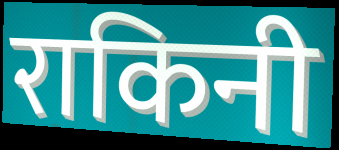
राकिनी